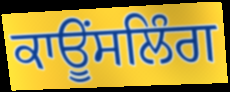
ਕਾਊਂਸਲਿੰਗ